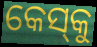
କେସ୍‌କୁ